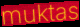
muktas